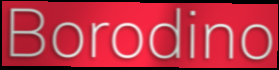
Borodino